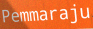
Pemmaraju